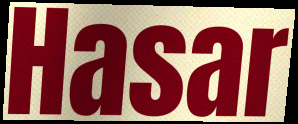
Hasar